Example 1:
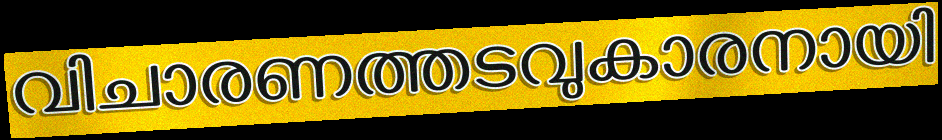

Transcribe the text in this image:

വിചാരണത്തടവുകാരനായി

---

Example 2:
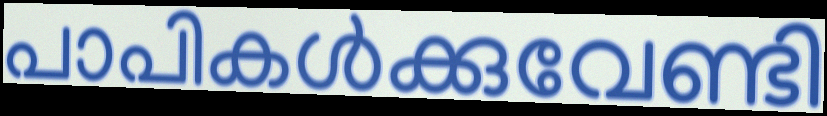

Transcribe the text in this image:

പാപികൾക്കുവേണ്ടി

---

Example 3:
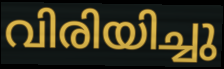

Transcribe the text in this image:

വിരിയിച്ചു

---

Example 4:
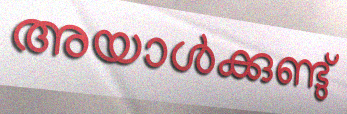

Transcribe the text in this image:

അയാൾക്കുണ്ടു്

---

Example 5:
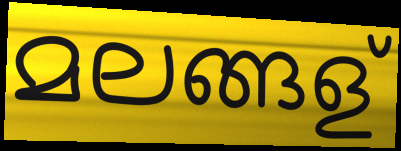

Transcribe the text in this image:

മലങ്ങള്